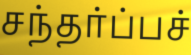
சந்தர்ப்பச்